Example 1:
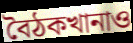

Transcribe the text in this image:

বৈঠকখানাও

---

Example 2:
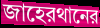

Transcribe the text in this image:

জাহেরথানের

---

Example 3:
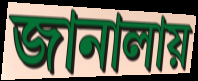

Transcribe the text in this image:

জানালায়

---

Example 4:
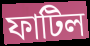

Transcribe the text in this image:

ফাটিল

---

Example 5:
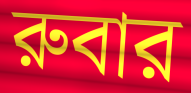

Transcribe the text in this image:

রুবার